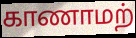
காணாமற்